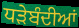
ਧੜੇਬੰਦੀਆਂ